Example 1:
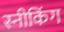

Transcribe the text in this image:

स्नीकिंग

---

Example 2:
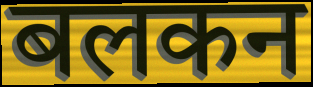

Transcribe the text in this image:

बलकन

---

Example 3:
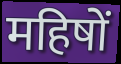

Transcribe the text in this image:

महिषों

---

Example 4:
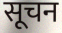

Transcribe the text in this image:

सूचन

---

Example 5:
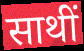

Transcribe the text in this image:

साथीं